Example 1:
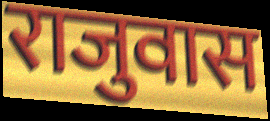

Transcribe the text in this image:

राजुवास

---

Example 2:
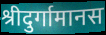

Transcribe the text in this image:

श्रीदुर्गामानस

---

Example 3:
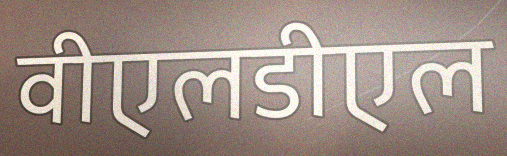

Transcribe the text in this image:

वीएलडीएल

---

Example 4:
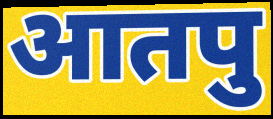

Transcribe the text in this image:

आतपु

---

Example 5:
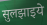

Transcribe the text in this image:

सुलझाइये